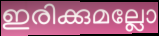
ഇരിക്കുമല്ലോ